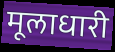
मूलाधारी